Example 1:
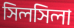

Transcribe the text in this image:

সিলসিলা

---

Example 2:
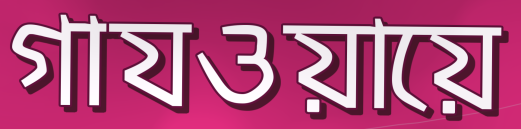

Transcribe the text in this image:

গাযওয়ায়ে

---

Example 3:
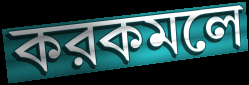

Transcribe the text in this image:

করকমলে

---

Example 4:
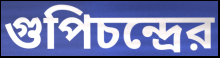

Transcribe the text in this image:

গুপিচন্দ্রের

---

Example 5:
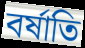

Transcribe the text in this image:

বর্ষাতি